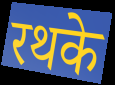
रथके